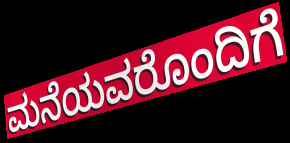
ಮನೆಯವರೊಂದಿಗೆ